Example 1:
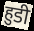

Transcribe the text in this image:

हुडी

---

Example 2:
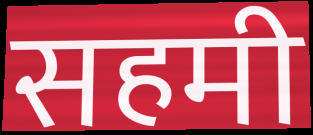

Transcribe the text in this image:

सहमी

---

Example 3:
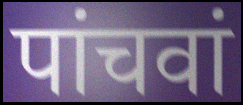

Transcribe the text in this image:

पांचवां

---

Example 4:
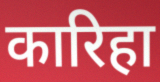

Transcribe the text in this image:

कारिहा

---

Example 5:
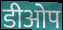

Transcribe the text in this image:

डीओप